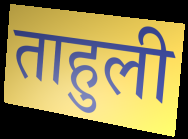
ताहुली